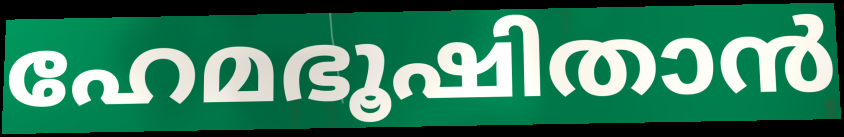
ഹേമഭൂഷിതാൻ